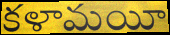
కళామయీ